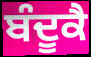
ਬੰਦੂਕੈ